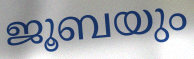
ജൂബയും